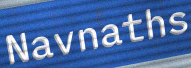
Navnaths